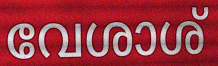
വേശാശ്